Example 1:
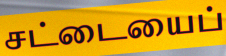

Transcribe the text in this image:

சட்டையைப்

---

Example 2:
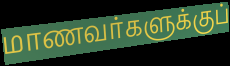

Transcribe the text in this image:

மாணவர்களுக்குப்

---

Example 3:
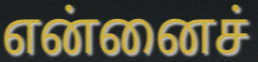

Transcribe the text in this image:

என்னைச்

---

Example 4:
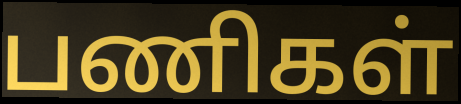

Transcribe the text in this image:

பணிகள்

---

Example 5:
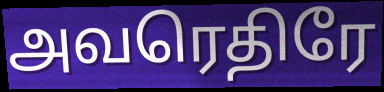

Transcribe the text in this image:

அவரெதிரே